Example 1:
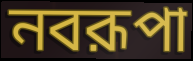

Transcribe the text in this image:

নবরূপা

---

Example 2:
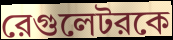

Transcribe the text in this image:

রেগুলেটরকে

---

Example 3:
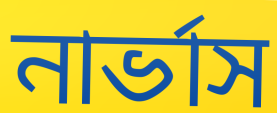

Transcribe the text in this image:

নার্ভাস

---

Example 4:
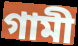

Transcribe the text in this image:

গামী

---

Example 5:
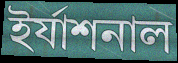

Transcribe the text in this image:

ইর্যাশনাল